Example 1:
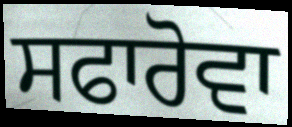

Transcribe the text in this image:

ਸਫਾਰੋਵਾ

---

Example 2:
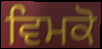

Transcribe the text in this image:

ਵਿਮਕੋ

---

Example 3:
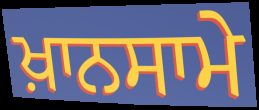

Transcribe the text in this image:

ਖ਼ਾਨਸਾਮੇ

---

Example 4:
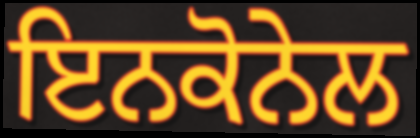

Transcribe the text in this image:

ਇਨਕੋਨੇਲ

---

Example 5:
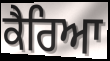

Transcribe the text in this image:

ਕੈਰਿਆ